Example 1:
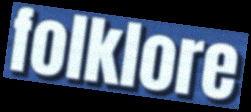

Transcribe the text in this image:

folklore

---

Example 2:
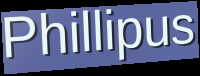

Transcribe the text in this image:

Phillipus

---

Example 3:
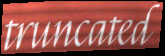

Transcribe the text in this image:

truncated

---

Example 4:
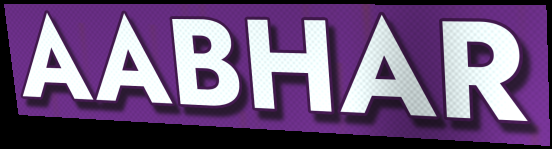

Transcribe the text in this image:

AABHAR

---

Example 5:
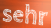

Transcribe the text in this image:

sehr